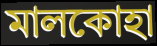
মালকোহা